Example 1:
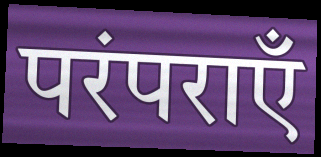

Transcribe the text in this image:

परंपराएँ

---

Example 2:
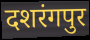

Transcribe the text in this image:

दशरंगपुर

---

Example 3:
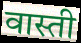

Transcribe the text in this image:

वास्ती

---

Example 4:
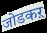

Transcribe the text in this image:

जोडकऱ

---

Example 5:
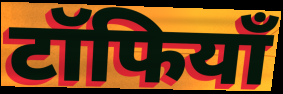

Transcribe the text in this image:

टॉफियाँ